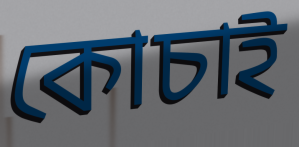
কোচাই